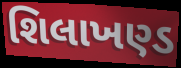
શિલાખણ્ડ